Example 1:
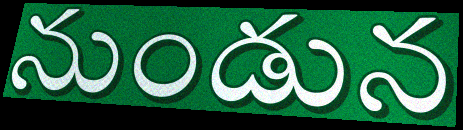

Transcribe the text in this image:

నుండున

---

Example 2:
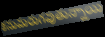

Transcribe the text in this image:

కనుమరుగవుతున్నాయి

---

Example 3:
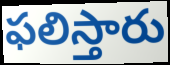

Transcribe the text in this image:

ఫలిస్తారు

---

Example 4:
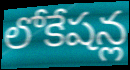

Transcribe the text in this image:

లోకేషన్ల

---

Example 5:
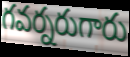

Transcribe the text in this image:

గవర్నరుగారు